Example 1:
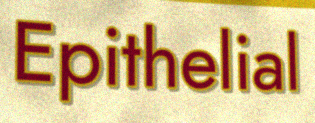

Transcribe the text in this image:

Epithelial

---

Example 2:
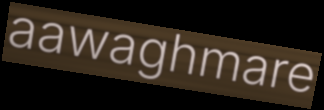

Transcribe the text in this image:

aawaghmare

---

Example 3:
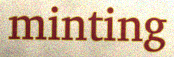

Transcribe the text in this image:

minting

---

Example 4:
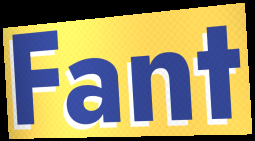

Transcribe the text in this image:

Fant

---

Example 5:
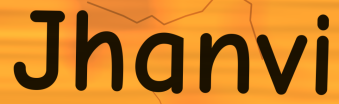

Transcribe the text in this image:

Jhanvi